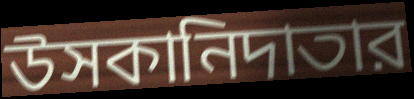
উসকানিদাতার